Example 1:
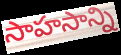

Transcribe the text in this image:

సాహసాన్ని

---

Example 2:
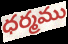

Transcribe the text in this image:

ధర్మము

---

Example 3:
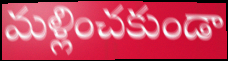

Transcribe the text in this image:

మళ్లించకుండా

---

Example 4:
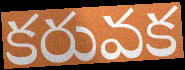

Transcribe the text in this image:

కరువక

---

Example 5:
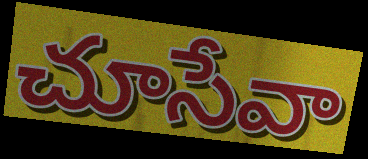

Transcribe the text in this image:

చూసేవా